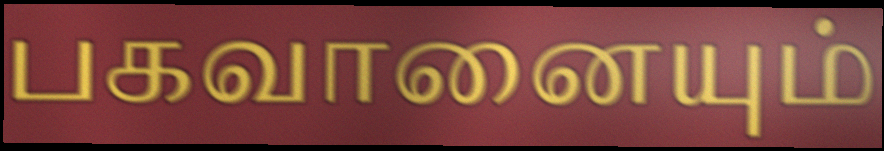
பகவானையும்